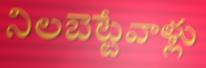
నిలబెట్టేవాళ్లు